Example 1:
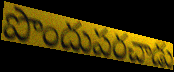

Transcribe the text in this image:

పొందుపరచాడు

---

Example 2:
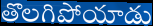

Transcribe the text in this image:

తొలగిపోయాడు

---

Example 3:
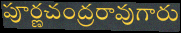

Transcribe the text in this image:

పూర్ణచంద్రరావుగారు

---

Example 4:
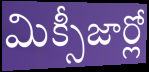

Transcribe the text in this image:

మిక్సీజార్లో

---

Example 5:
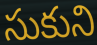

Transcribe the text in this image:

సుకుని